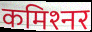
कमिश्‍नर